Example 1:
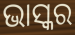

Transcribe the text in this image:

ଭାସ୍କର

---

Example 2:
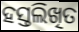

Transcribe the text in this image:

ହସ୍ତଲିଖିତ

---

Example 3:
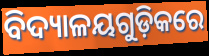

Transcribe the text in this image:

ବିଦ୍ୟାଳୟଗୁଡ଼ିକରେ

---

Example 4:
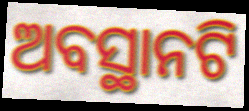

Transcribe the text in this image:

ଅବସ୍ଥାନଟି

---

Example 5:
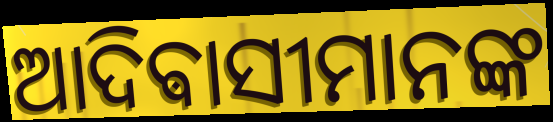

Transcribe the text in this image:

ଆଦିଵାସୀମାନଙ୍କ